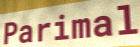
Parimal